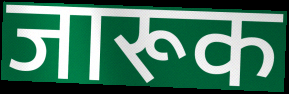
जारूक